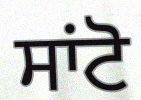
ਸਾਂਟੋ